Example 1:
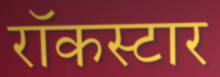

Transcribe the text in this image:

रॉकस्टार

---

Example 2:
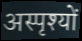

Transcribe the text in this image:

अस्पृश्यों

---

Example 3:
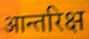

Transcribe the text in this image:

आन्तरिक्ष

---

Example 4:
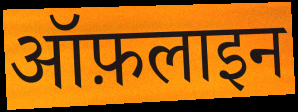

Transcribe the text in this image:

ऑफ़लाइन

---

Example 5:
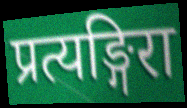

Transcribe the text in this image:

प्रत्यङ्गिरा